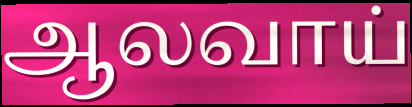
ஆலவாய்